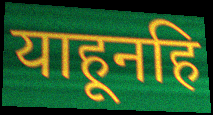
याहूनहि